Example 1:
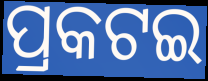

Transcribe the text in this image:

ପ୍ରକଟଇ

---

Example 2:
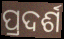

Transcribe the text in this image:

ପ୍ରଦର୍ଶ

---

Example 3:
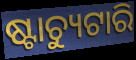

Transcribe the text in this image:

ଷ୍ଟାଚ୍ୟୁଟାରି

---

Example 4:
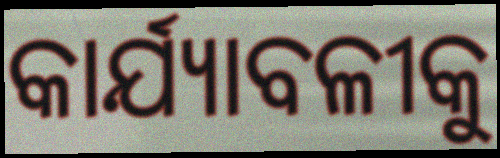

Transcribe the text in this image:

କାର୍ଯ୍ୟାବଳୀକୁ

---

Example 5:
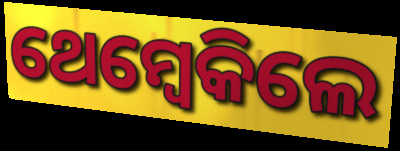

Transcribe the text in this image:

ଥେମ୍ବେକିଲେ